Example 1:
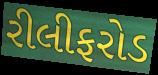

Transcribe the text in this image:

રીલીફરોડ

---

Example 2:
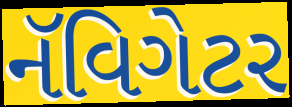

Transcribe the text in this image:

નૅવિગેટર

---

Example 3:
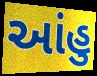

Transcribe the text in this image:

આંહુ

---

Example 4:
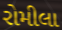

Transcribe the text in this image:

રોમીલા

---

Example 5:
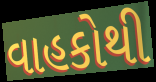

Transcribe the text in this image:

વાહકોથી